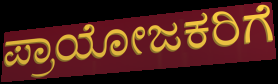
ಪ್ರಾಯೋಜಕರಿಗೆ